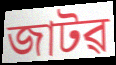
জাটৱ